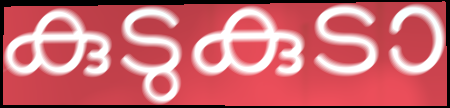
കുടുകുടാ